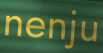
nenju